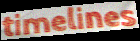
timelines